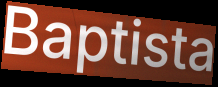
Baptista